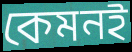
কেমনই